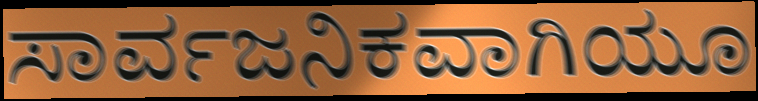
ಸಾರ್ವಜನಿಕವಾಗಿಯೂ